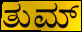
ತುಮ್